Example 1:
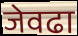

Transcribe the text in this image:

जेवढा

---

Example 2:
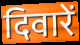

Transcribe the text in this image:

दिवारें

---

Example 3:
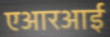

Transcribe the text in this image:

एआरआई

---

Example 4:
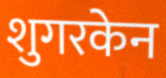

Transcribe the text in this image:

शुगरकेन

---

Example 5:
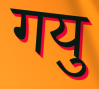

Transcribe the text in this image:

गयु